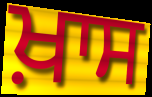
ਖ਼ਾਸ